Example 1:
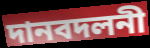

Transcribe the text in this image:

দানবদলনী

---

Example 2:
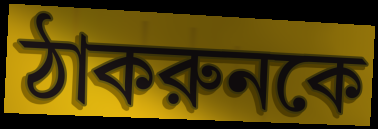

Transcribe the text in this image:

ঠাকরুনকে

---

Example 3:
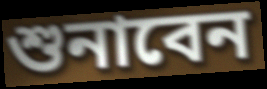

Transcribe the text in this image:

শুনাবেন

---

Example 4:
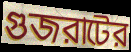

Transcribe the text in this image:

গুজরাটের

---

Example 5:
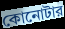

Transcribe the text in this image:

কোনোটার